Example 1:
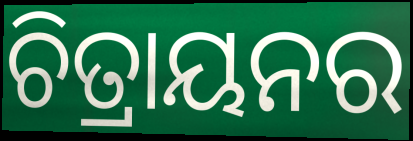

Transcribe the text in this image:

ଚିତ୍ରାୟନର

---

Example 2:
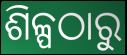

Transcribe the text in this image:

ଶିଳ୍ପଠାରୁ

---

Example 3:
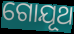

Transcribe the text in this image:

ଗୋଯୂଥ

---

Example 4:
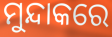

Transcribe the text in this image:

ମୁନ୍ଦାକରେ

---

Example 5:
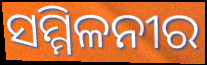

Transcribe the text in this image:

ସମ୍ମିଳନୀର